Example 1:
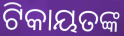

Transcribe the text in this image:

ଟିକାୟତଙ୍କ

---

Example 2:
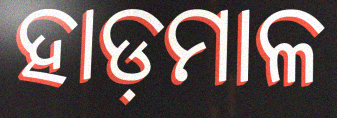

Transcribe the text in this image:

ହାଡ଼ମାଳ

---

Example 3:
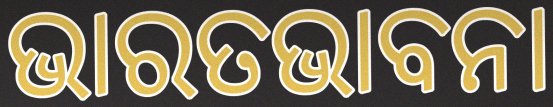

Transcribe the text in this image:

ଭାରତଭାବନା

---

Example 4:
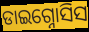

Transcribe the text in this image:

ଡାଇଗ୍ନୋସିସ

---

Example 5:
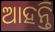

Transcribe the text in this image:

ଆହନ୍ତି